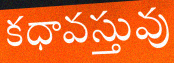
కధావస్తువు